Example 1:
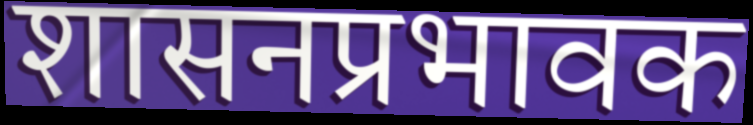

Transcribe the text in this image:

शासनप्रभावक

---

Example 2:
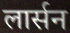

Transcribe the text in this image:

लार्सन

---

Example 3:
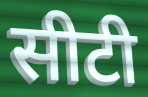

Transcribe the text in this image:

सीटी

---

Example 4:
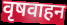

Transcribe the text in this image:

वृषवाहन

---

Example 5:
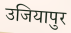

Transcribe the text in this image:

उजियापुर